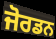
ਜੋਰਡਨ